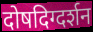
दोषदिग्दर्शन